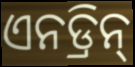
ଏନଡ୍ରିନ୍